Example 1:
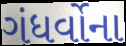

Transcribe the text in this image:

ગંધર્વોના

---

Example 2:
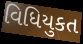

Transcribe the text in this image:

વિધિયુકત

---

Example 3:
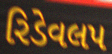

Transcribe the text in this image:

રિડેવલપ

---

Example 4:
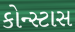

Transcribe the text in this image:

કોન્સ્ટાસ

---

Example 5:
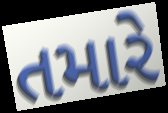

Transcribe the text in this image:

તમારે